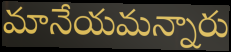
మానేయమన్నారు